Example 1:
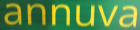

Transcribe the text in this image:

annuva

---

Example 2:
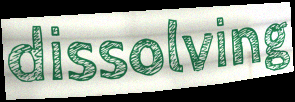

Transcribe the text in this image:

dissolving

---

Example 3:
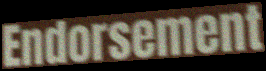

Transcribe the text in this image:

Endorsement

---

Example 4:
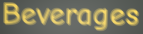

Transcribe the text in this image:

Beverages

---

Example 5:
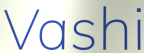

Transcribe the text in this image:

Vashi